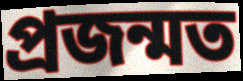
প্ৰজন্মত